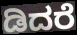
ಡಿದರೆ